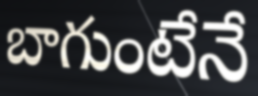
బాగుంటేనే